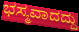
ಭಸ್ಮವಾದದ್ದು